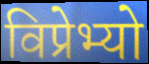
विप्रेभ्यो